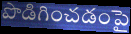
పొడిగించడంపై